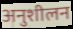
अनुशीलन